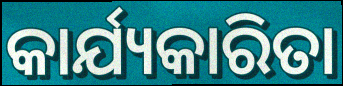
କାର୍ଯ୍ୟକାରିତା